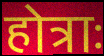
होत्राः